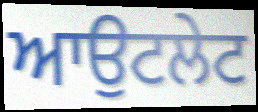
ਆਉਟਲੇਟ